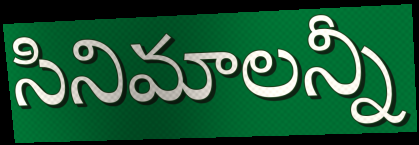
సినిమాలన్నీ